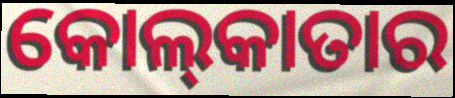
କୋଲ୍‌କାତାର